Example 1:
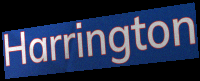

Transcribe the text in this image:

Harrington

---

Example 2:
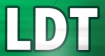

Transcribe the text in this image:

LDT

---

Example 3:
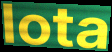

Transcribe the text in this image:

lota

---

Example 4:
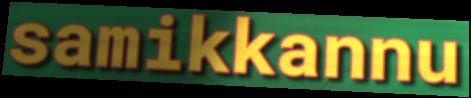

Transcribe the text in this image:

samikkannu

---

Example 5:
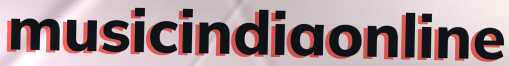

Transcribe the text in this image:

musicindiaonline